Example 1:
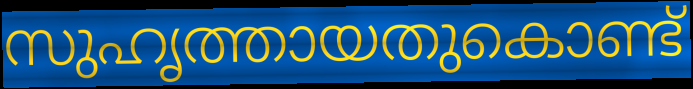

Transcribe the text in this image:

സുഹൃത്തായതുകൊണ്ട്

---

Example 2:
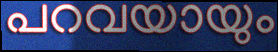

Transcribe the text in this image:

പറവയായും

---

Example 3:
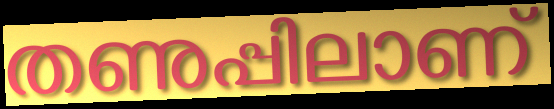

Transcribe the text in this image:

തണുപ്പിലാണ്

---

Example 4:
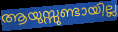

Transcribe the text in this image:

ആയുസ്സുണ്ടായില്ല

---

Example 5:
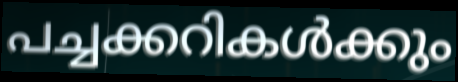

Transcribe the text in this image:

പച്ചക്കറികൾക്കും